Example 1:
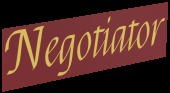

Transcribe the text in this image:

Negotiator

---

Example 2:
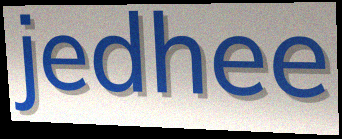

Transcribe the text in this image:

jedhee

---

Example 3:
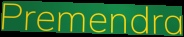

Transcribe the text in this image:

Premendra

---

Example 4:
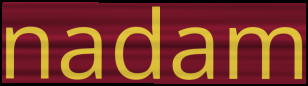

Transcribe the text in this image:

nadam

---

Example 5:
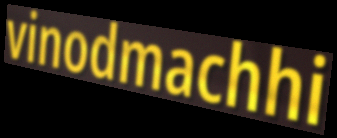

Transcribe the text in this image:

vinodmachhi